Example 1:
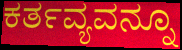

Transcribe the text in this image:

ಕರ್ತವ್ಯವನ್ನೂ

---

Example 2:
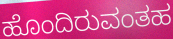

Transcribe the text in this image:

ಹೊಂದಿರುವಂತಹ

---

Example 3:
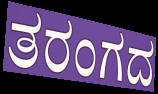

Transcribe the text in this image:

ತರಂಗದ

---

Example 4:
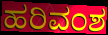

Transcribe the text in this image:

ಹರಿವಂಶ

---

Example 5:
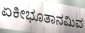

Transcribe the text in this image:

ಏಕೀಭೂತಾನಮಿವ